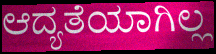
ಆದ್ಯತೆಯಾಗಿಲ್ಲ